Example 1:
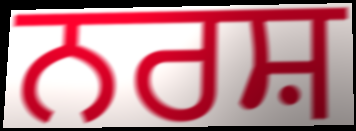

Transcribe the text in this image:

ਨਰਸ਼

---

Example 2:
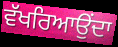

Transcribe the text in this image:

ਵੱਖਰਿਆਉਂਦਾ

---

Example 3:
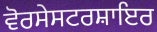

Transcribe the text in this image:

ਵੋਰਸੇਸਟਰਸ਼ਾਇਰ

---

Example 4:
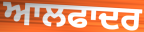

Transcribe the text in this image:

ਆਲਫਾਦਰ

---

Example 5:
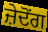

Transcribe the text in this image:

ਜ਼ੇਦੋਂਗ